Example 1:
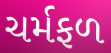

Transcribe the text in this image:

ચર્મફળ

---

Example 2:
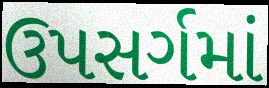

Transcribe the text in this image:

ઉપસર્ગમાં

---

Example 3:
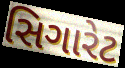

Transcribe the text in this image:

સિગારેટ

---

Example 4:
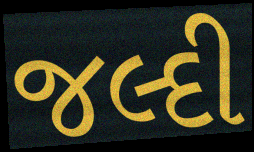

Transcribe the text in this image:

જલ્દી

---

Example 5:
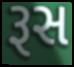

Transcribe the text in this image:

રૂસ